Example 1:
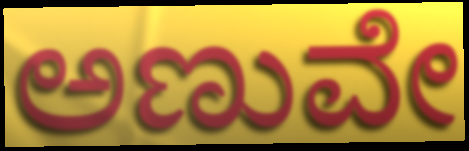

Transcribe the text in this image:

ಅಣುವೇ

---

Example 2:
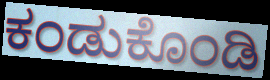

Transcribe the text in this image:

ಕಂಡುಕೊಂಡಿ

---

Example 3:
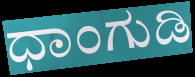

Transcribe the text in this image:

ಧಾಂಗುಡಿ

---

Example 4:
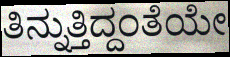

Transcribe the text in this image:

ತಿನ್ನುತ್ತಿದ್ದಂತೆಯೇ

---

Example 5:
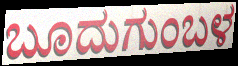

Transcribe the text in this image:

ಬೂದುಗುಂಬಳ